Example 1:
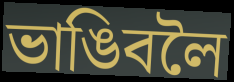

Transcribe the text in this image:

ভাঙিবলৈ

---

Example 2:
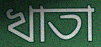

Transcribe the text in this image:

খাতা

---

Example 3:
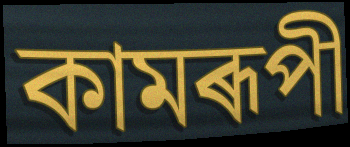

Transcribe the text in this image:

কামৰূপী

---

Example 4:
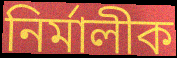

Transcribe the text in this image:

নিৰ্মালীক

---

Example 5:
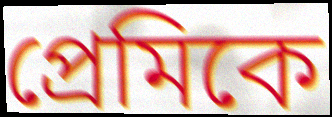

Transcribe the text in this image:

প্ৰেমিকে